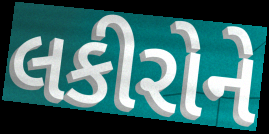
લકીરોને